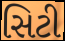
સિટી